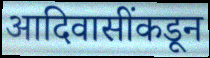
आदिवासींकडून